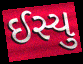
ઈસ્યુ